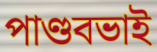
পাণ্ডবভাই